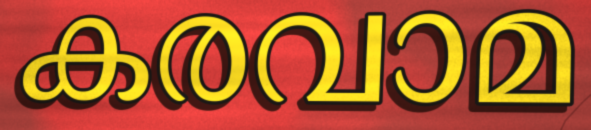
കരവാമ